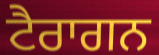
ਟੈਰਾਗਨ